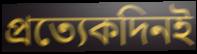
প্রত্যেকদিনই